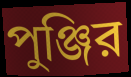
পুঞ্জির